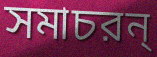
সমাচরন্